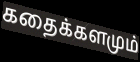
கதைக்களமும்